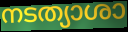
നടത്യാശാ